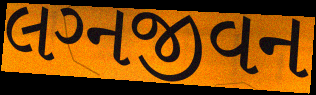
લગ્‍નજીવન